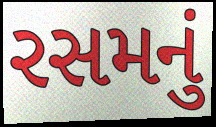
રસમનું